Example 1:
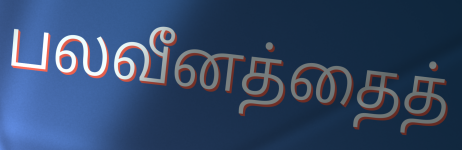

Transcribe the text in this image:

பலவீனத்தைத்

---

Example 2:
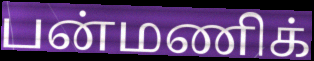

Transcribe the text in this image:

பன்மணிக்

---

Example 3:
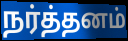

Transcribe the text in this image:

நர்த்தனம்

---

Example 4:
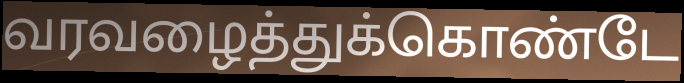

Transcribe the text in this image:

வரவழைத்துக்கொண்டே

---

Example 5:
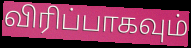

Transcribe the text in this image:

விரிப்பாகவும்